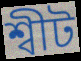
শ্বীট